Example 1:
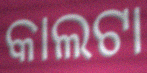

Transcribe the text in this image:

କାଲଟା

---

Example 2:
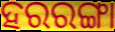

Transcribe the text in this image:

ହରରଙ୍ଗା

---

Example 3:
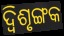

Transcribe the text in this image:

ଦ୍ଵିଶୃଙ୍ଗକ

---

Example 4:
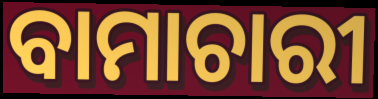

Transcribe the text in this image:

ବାମାଚାରୀ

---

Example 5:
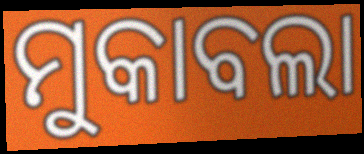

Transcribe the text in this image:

ମୁକାବଲା